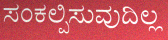
ಸಂಕಲ್ಪಿಸುವುದಿಲ್ಲ